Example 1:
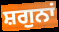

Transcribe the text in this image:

ਸ਼ਗੁਨਾਂ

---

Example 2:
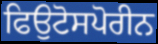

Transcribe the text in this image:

ਫਿਉਟੋਸਪੋਰੀਨ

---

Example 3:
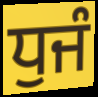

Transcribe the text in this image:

ਧੁਜੰ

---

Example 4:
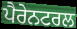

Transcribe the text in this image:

ਪੈਰੇਨਟਰਲ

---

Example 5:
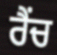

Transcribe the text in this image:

ਰੈਂਚ